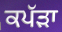
ਕਪੱੜਾ